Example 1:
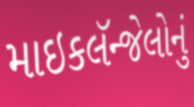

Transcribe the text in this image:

માઇકલૅન્જેલોનું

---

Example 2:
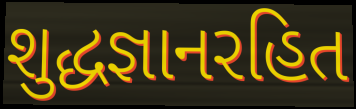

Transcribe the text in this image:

શુદ્ધજ્ઞાનરહિત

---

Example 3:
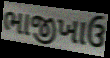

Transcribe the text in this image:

ભાજીખાઉ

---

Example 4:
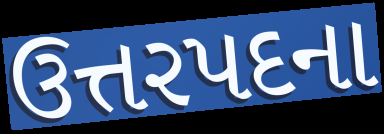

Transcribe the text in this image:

ઉત્તરપદના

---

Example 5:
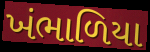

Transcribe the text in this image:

ખંભાળિયા